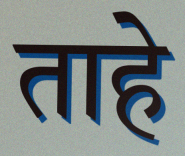
ताहे